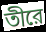
তীরে